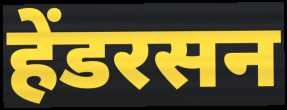
हेंडरसन